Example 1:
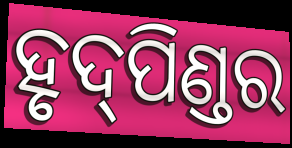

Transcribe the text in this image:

ହୃଦ୍‌ପିଣ୍ଡର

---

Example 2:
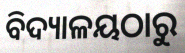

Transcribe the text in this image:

ବିଦ୍ୟାଳୟଠାରୁ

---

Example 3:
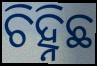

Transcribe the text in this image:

ଚିହ୍ନିଛ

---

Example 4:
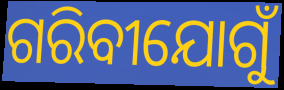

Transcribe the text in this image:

ଗରିବୀଯୋଗୁଁ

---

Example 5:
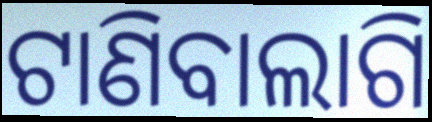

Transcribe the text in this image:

ଟାଣିବାଲାଗି